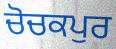
ਚੋਚਕਪੁਰ